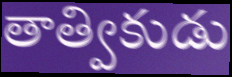
తాత్వికుడు